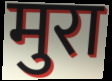
मुरा